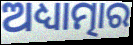
ଅଧ୍ୟାତ୍ମାର